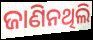
ଜାଣିନଥିଲି